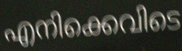
എനിക്കെവിടെ